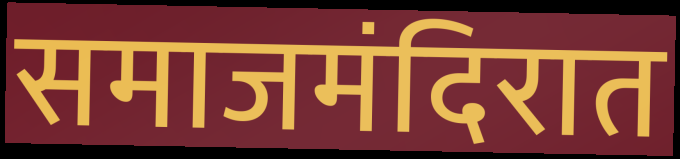
समाजमंदिरात